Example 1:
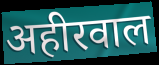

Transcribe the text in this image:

अहीरवाल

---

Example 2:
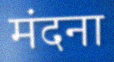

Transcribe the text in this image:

मंदना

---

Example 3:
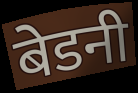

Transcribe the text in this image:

बेडनी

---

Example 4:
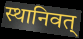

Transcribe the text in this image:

स्थानिवत्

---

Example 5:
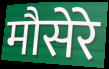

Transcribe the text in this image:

मौसेरे